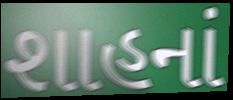
શાહનાં